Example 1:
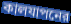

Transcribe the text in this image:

কালযাপনের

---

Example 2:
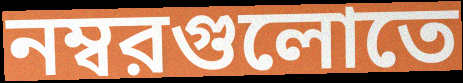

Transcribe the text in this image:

নম্বরগুলোতে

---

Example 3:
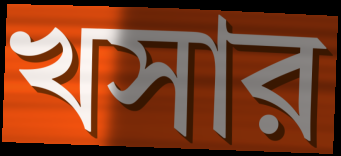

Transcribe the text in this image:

খসার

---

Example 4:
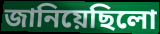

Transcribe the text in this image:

জানিয়েছিলো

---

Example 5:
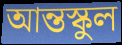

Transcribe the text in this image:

আন্তস্কুল